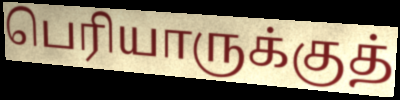
பெரியாருக்குத்